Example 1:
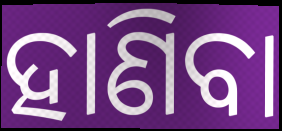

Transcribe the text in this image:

ହାଣିବା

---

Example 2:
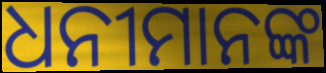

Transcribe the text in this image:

ଧନୀମାନଙ୍କ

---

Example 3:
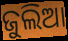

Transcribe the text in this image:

ଜୁଲିଆ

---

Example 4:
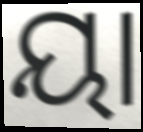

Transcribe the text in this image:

ୟା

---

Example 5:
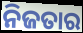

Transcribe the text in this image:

ନିଜତାର